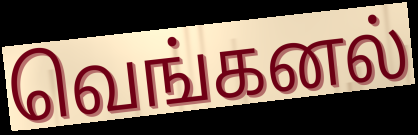
வெங்கனல்